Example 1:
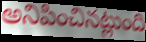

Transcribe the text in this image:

అనిపించినట్లుంది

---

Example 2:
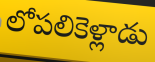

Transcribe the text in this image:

లోపలికెళ్లాడు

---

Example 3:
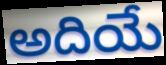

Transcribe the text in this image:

అదియే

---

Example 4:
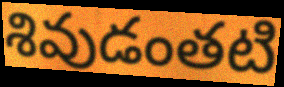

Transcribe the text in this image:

శివుడంతటి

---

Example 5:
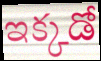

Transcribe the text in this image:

ఇక్కడో